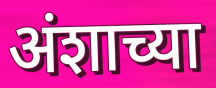
अंशाच्या